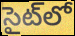
సైట్‌లో